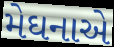
મેઘનાએ